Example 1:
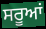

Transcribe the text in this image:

ਸਰੂਆਂ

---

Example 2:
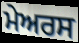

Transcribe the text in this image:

ਮੇਅਰਸ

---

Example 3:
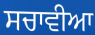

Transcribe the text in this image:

ਸਚਾਵੀਆ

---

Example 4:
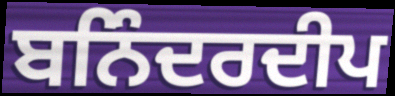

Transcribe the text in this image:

ਬਨਿੰਦਰਦੀਪ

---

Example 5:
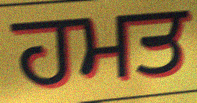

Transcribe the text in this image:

ਹਮਤ